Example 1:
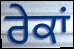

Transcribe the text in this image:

ਰੇਕਾਂ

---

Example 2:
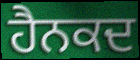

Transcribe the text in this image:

ਹੈਨਕਦ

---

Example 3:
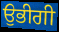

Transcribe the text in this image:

ਉਭੀਗੀ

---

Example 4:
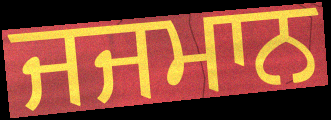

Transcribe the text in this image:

ਜਜਮਾਨ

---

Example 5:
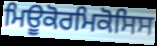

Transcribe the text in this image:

ਮਿਊਕੋਰਮਿਕੋਸਿਸ